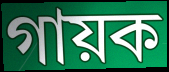
গায়ক